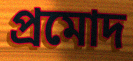
প্রমোদ